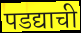
पडद्याची